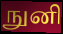
நுனி